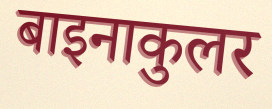
बाइनाकुलर